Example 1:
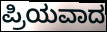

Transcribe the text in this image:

ಪ್ರಿಯವಾದ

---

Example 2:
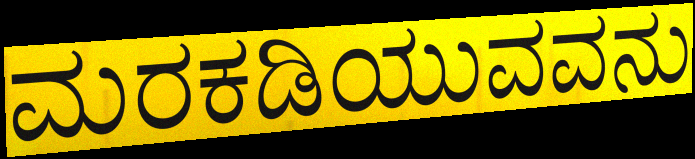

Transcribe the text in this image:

ಮರಕಡಿಯುವವನು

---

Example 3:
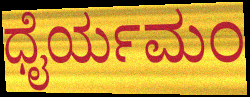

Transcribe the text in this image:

ಧೈರ್ಯಮಂ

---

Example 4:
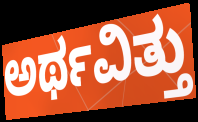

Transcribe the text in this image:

ಅರ್ಥವಿತ್ತು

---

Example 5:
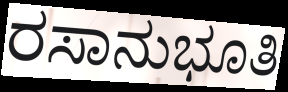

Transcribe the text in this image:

ರಸಾನುಭೂತಿ